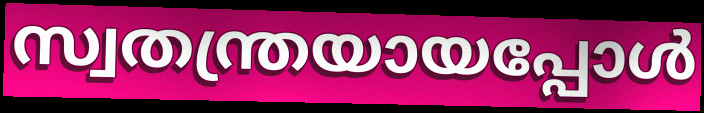
സ്വതന്ത്രയായപ്പോൾ